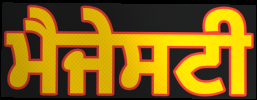
ਮੈਜੇਸਟੀ